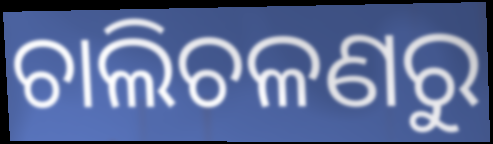
ଚାଲିଚଳଣରୁ